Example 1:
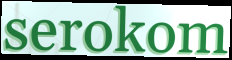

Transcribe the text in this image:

serokom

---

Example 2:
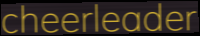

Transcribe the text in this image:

cheerleader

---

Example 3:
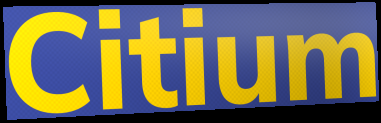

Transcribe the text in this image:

Citium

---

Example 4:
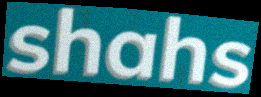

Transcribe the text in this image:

shahs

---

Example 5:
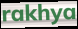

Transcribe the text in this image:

rakhya